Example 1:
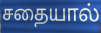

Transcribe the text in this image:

சதையால்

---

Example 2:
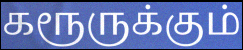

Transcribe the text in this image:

கரூருக்கும்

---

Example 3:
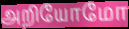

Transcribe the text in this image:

அறியோமோ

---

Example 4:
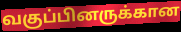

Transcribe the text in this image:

வகுப்பினருக்கான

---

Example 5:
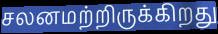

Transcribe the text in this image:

சலனமற்றிருக்கிறது